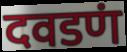
दवडणं